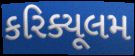
કરિક્યૂલમ